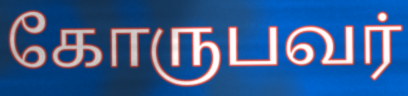
கோருபவர்